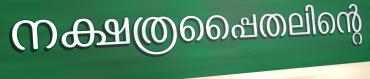
നക്ഷത്രപ്പൈതലിന്റെ